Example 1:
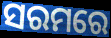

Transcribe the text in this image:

ସରମରେ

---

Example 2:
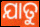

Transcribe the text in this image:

ଯାତୁ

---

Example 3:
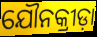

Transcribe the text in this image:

ଯୌନକ୍ରୀଡ଼ା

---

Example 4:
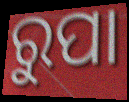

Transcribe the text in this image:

ରୁପା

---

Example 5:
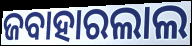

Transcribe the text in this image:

ଜବାହାରଲାଲ